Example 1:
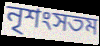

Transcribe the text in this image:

নৃশংসতম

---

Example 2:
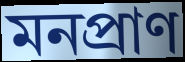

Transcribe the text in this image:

মনপ্রাণ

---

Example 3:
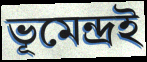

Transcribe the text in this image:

ভূমেন্দ্রই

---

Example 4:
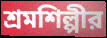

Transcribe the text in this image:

শ্রমশিল্পীর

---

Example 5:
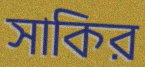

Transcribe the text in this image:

সাকির